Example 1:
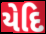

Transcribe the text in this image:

યેદિ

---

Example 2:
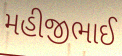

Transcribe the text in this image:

મહીજીભાઈ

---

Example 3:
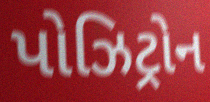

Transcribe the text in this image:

પોઝિટ્રોન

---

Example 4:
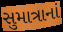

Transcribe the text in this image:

સુમાત્રાનાં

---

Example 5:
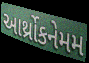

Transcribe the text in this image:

આર્થ્રોકનેમમ